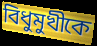
বিধুমুখীকে